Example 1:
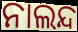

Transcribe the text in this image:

ନାଲନ୍ଦ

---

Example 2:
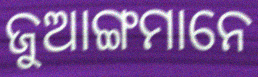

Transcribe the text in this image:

ଜୁଆଙ୍ଗମାନେ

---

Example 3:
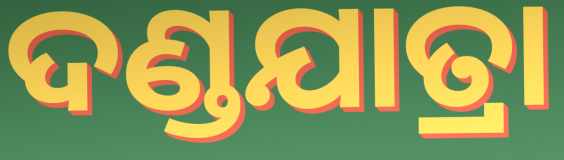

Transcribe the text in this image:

ଦଣ୍ଡଯାତ୍ରା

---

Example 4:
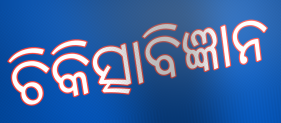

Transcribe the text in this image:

ଚିକିତ୍ସାବିଜ୍ଞାନ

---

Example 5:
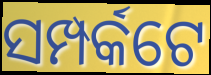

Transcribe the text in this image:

ସମ୍ପର୍କଟେ